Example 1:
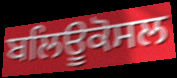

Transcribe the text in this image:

ਬਲਿਊਕੋਸਲ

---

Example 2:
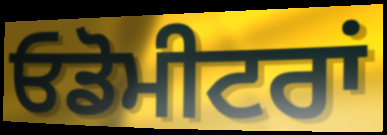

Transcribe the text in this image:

ਓਡੋਮੀਟਰਾਂ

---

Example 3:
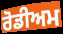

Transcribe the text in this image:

ਰੋਡੀਅਮ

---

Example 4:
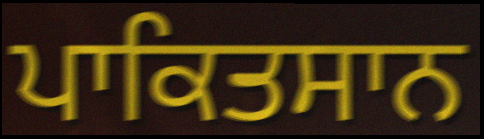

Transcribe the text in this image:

ਪਾਕਿਤਸਾਨ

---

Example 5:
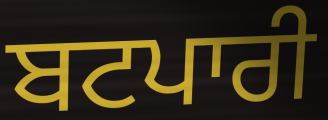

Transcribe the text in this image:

ਬਟਪਾਰੀ